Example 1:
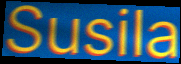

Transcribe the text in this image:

Susila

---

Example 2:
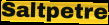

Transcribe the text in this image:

Saltpetre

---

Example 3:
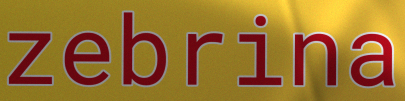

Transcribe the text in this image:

zebrina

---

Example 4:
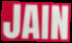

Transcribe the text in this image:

JAIN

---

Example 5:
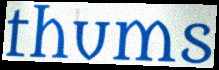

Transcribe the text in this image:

thums